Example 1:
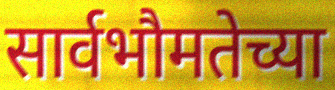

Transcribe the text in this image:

सार्वभौमतेच्या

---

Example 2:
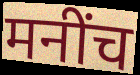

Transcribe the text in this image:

मनींच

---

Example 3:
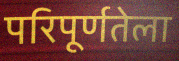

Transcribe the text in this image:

परिपूर्णतेला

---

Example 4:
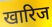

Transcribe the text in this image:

खारिज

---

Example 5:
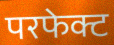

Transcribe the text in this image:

परफेक्ट